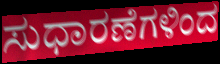
ಸುಧಾರಣೆಗಳಿಂದ